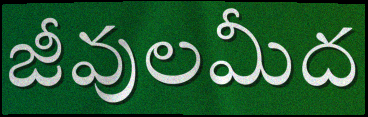
జీవులమీద